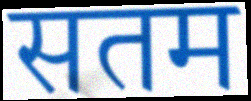
सतम